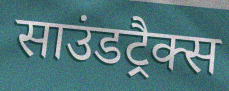
साउंडट्रैक्स